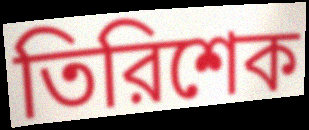
তিরিশেক